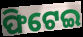
ଫିଟେଇ